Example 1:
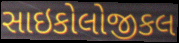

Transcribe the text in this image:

સાઇકોલોજીકલ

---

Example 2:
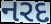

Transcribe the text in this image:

નરદ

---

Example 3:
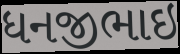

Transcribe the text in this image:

ધનજીભાઇ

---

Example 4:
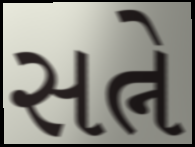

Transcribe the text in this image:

સત્ને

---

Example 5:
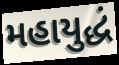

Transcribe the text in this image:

મહાયુદ્ધં